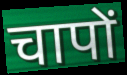
चापों